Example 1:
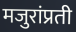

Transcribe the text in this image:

मजुरांप्रती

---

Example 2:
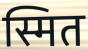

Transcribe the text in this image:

स्मित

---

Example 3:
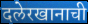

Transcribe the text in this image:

दलेरखानाची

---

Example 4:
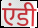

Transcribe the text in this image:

एंडी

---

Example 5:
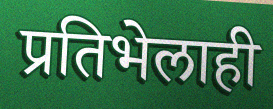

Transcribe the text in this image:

प्रतिभेलाही